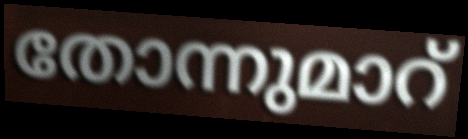
തോന്നുമാറ്